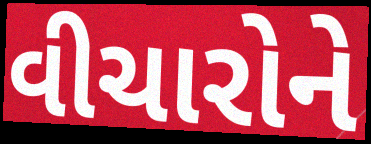
વીચારોને